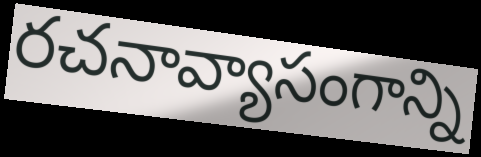
రచనావ్యాసంగాన్ని